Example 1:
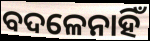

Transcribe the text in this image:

ବଦଳେନାହିଁ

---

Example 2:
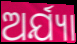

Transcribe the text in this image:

ଅର୍ଯ୍ୟା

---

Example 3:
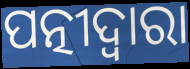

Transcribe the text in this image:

ପତ୍ନୀଦ୍ୱାରା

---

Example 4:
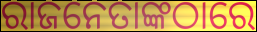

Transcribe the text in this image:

ରାଜନେତାଙ୍କଠାରେ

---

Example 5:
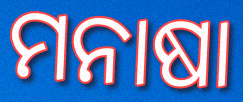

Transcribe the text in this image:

ମନାଷା